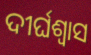
ଦୀର୍ଘଶ୍ୱାସ